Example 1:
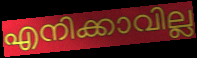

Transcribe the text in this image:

എനിക്കാവില്ല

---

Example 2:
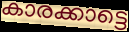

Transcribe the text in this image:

കാരക്കാട്ടെ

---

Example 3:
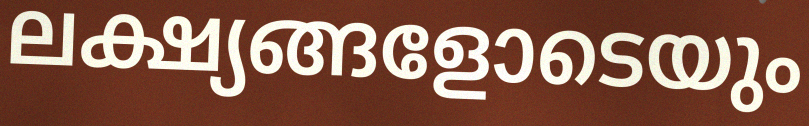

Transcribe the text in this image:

ലക്ഷ്യങ്ങളോടെയും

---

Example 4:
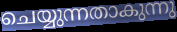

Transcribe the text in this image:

ചെയ്യുന്നതാകുന്നു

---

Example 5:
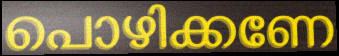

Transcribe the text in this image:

പൊഴിക്കണേ